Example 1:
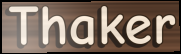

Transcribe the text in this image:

Thaker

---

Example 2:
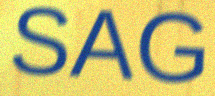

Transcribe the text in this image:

SAG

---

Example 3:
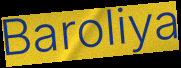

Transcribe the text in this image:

Baroliya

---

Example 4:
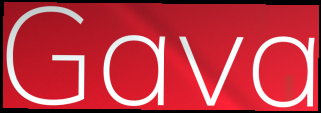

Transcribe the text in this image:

Gava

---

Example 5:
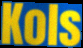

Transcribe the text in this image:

Kols